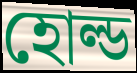
হোল্ড